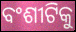
ବଂଶୀଟିକୁ